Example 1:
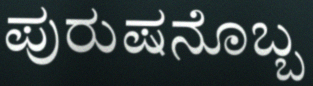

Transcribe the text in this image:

ಪುರುಷನೊಬ್ಬ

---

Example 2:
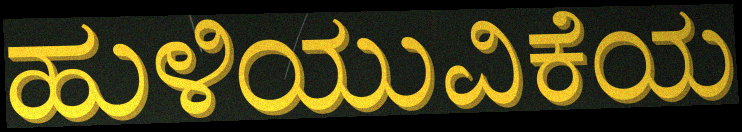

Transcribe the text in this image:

ಹುಳಿಯುವಿಕೆಯ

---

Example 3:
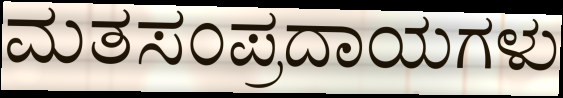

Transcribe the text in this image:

ಮತಸಂಪ್ರದಾಯಗಳು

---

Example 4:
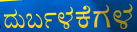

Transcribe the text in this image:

ದುರ್ಬಳಕೆಗಳ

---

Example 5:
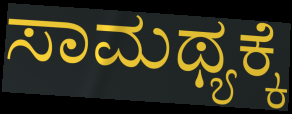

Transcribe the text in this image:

ಸಾಮಥ್ಯಕ್ಕೆ